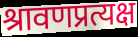
श्रावणप्रत्यक्ष